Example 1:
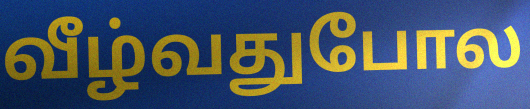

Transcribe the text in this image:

வீழ்வதுபோல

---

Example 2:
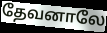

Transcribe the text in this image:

தேவனாலே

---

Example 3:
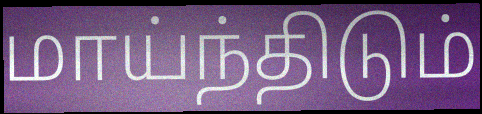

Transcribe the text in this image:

மாய்ந்திடும்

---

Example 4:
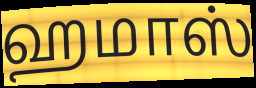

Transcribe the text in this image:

ஹமாஸ்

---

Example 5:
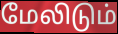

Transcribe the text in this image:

மேலிடும்